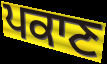
ਪਕਾਣ